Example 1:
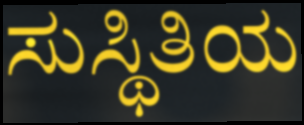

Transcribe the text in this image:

ಸುಸ್ಥಿತಿಯ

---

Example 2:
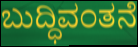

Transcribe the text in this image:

ಬುದ್ಧಿವಂತನೆ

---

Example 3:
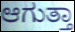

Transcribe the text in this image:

ಆಗುತ್ತಾ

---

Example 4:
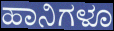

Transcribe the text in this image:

ಹಾನಿಗಳೂ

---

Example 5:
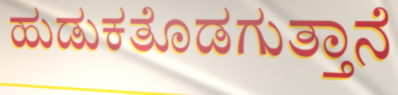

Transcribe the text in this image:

ಹುಡುಕತೊಡಗುತ್ತಾನೆ